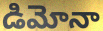
డిమోనా